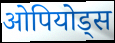
ओपियोड्स